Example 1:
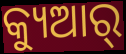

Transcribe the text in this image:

କ୍ୟୁଆର୍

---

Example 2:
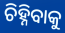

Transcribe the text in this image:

ଚିହ୍ନିବାକୁ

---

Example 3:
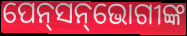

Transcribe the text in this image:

ପେନ୍‌ସନ୍‌ଭୋଗୀଙ୍କ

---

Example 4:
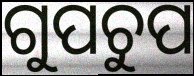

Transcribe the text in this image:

ଗୁପଚୁପ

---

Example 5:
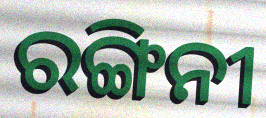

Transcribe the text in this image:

ରଙ୍ଗିନୀ